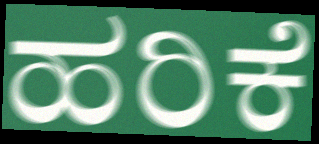
ಹರಿಕೆ